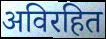
अविरहित